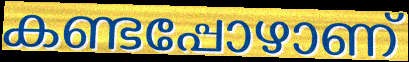
കണ്ടപ്പോഴാണ്